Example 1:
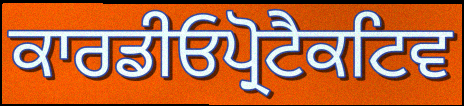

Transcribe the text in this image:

ਕਾਰਡੀਓਪ੍ਰੋਟੈਕਟਿਵ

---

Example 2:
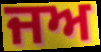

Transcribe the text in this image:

ਜਅ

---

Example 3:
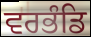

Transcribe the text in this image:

ਵਰਭੰਡਿ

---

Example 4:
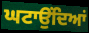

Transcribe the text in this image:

ਘਟਾਉਂਦਿਆਂ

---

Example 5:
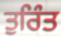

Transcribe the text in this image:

ਤੁਰਿੰਤ